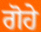
ਗੋਹੇ